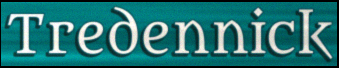
Tredennick